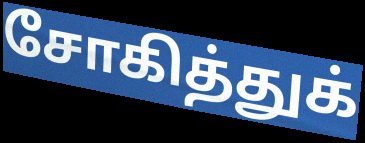
சோகித்துக்